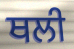
ਥਲੀ